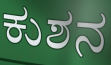
ಕುಶನ